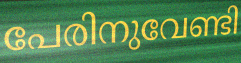
പേരിനുവേണ്ടി